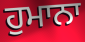
ਹੁਮਾਨਾ